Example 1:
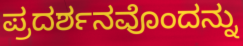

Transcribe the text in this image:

ಪ್ರದರ್ಶನವೊಂದನ್ನು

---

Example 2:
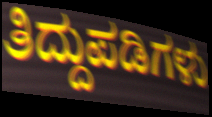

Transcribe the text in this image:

ತಿದ್ದುಪಡಿಗಳು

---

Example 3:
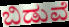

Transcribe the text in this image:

ಬಿಡುವೆ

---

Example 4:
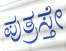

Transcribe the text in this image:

ಪುತ್ರಸ್ತೇ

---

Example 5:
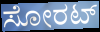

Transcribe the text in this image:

ಸೋರಟ್